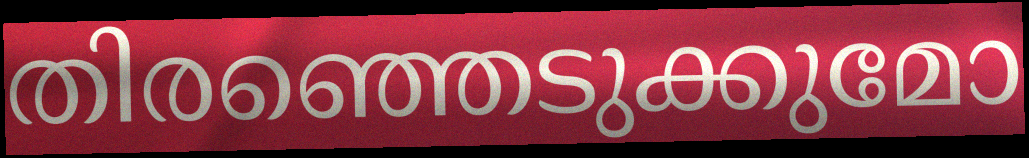
തിരഞ്ഞെടുക്കുമോ